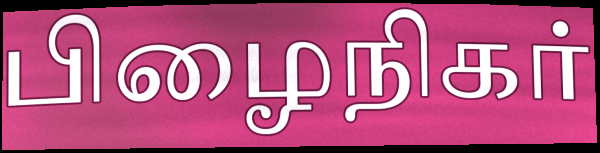
பிழைநிகர்